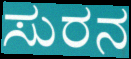
ಸುರನ